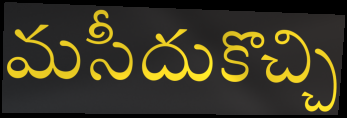
మసీదుకొచ్చి